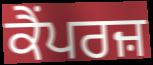
ਕੈਂਪਰਜ਼